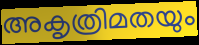
അകൃത്രിമതയും